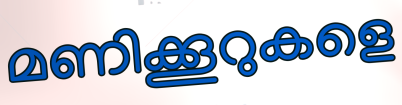
മണിക്കൂറുകളെ